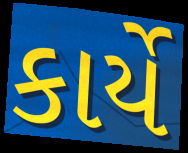
કાર્યે